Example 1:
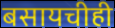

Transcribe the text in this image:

बसायचीही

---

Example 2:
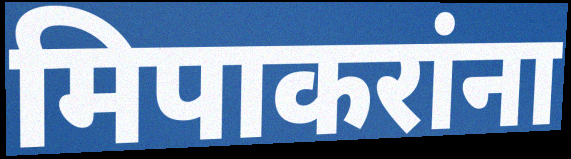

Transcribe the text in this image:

मिपाकरांना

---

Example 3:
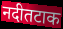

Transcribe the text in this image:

नदीतटाक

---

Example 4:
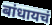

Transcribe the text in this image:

बांधायचं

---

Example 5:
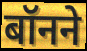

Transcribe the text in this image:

बॉनने